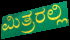
ಮಿತ್ರರಲ್ಲಿ